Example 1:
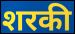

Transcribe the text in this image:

शरकी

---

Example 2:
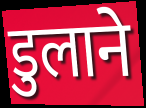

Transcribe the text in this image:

डुलाने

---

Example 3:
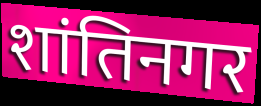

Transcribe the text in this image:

शांतिनगर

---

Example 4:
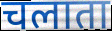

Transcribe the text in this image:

चलाता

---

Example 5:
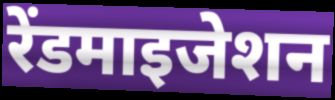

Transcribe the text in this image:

रेंडमाइजेशन